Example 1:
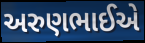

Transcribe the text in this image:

અરુણભાઈએ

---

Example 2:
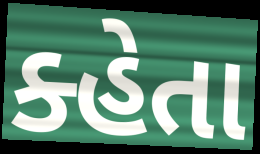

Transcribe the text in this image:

ક્હેતા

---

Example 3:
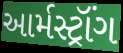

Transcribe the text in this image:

આર્મસ્ટ્રૉંગ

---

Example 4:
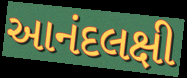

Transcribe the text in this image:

આનંદલક્ષી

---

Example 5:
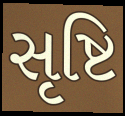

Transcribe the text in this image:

સૃષ્ટિ